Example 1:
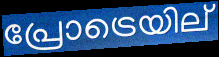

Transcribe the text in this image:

പ്രോട്രെയില്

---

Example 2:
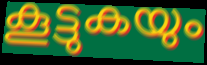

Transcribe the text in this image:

കൂട്ടുകയും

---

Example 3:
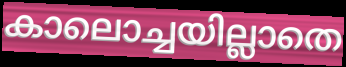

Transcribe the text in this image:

കാലൊച്ചയില്ലാതെ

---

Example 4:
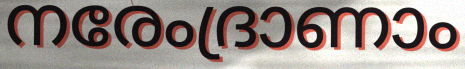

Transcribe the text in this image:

നരേംദ്രാണാം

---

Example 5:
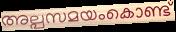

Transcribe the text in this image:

അല്പസമയംകൊണ്ട്